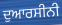
ਦੁਆਰਸੀਨੀ